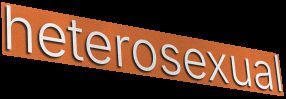
heterosexual